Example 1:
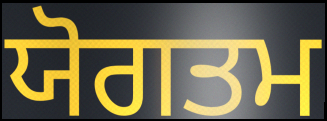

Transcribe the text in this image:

ਯੋਗਤਮ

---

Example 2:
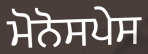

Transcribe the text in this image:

ਮੋਨੋਸਪੇਸ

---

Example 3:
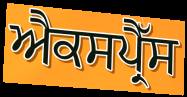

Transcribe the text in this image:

ਐਕਸਪ੍ਰੈੱਸ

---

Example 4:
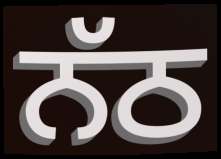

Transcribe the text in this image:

ਨੱਠ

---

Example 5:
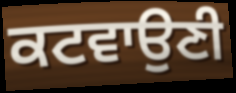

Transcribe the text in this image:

ਕਟਵਾਉਣੀ